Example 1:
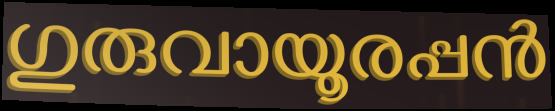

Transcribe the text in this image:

ഗുരുവായൂരപ്പൻ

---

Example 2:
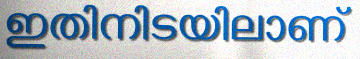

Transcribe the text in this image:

ഇതിനിടയിലാണ്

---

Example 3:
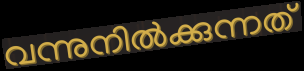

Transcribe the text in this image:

വന്നുനിൽക്കുന്നത്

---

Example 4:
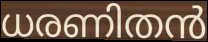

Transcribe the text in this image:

ധരണിതൻ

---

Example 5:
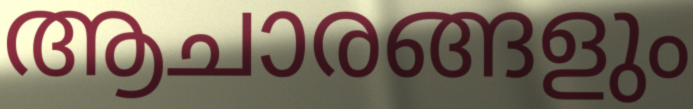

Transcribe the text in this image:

ആചാരങ്ങളും